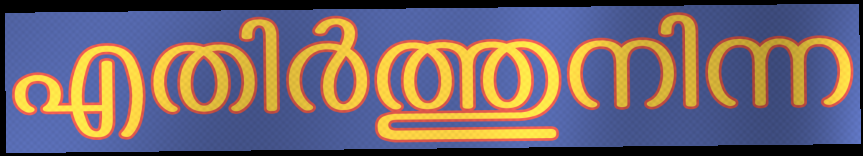
എതിർത്തുനിന്ന